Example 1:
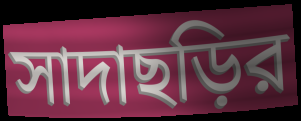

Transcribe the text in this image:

সাদাছড়ির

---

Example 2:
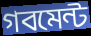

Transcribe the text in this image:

গবমেন্ট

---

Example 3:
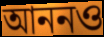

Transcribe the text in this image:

আননও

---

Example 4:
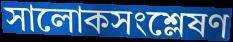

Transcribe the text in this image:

সালোকসংশ্লেষণ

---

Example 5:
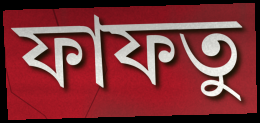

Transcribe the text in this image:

ফাফতু